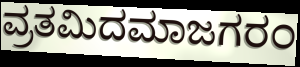
ವ್ರತಮಿದಮಾಜಗರಂ